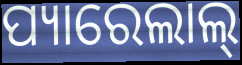
ପ୍ୟାରେଲାଲ୍